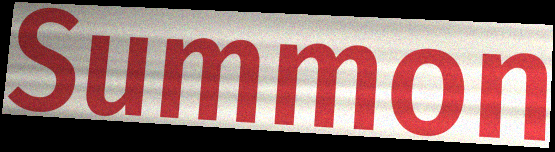
Summon